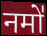
नमो॑